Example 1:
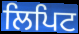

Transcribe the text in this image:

ਲਿਪਿਟ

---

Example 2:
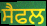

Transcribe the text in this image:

ਸੈਫਲ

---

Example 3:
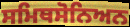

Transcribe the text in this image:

ਸਮਿਥਸੋਨਿਅਨ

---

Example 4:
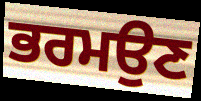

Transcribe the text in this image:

ਭਰਮਉਣ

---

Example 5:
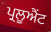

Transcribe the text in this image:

ਪ੍ਰਲੂਐਂਟ